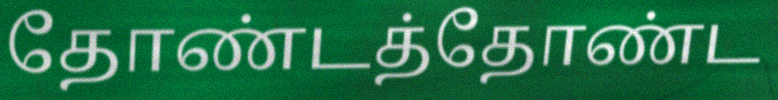
தோண்டத்தோண்ட